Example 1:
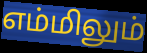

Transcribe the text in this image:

எம்மிலும்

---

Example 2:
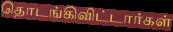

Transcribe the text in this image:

தொடங்கிவிட்டார்கள்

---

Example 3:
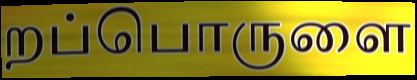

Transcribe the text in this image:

றப்பொருளை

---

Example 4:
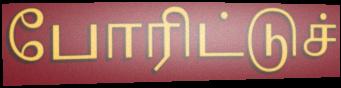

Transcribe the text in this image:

போரிட்டுச்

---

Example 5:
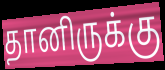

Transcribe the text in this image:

தானிருக்கு